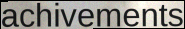
achivements